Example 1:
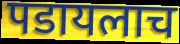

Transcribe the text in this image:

पडायलाच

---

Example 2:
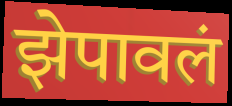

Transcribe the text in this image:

झेपावलं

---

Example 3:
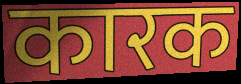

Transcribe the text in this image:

कारक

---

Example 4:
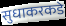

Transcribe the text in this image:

सुधाकरकडे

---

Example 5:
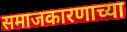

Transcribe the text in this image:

समाजकारणाच्या